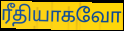
ரீதியாகவோ